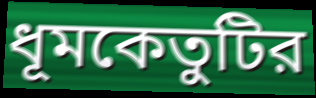
ধূমকেতুটির